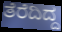
ತೆರೆದಿದ್ದ